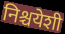
निश्चयेशी